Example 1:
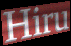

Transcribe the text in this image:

Hiru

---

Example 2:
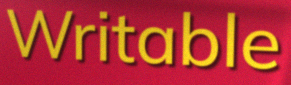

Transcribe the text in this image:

Writable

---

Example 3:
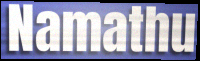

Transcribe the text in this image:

Namathu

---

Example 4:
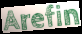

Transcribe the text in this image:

Arefin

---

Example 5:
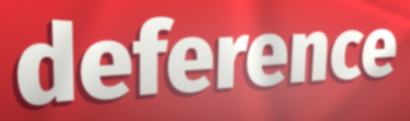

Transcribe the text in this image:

deference